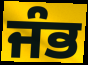
ਜੰਭ